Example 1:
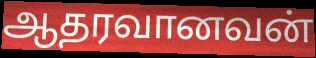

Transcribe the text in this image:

ஆதரவானவன்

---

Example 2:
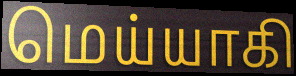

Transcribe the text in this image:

மெய்யாகி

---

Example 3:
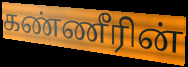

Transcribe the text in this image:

கண்ணீரின்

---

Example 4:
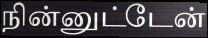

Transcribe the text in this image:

நின்னுட்டேன்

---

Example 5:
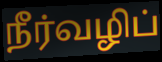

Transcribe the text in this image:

நீர்வழிப்